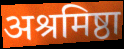
अश्रमिष्ठा